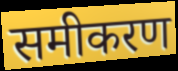
समीकरण